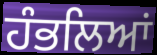
ਹੰਭਲਿਆਂ